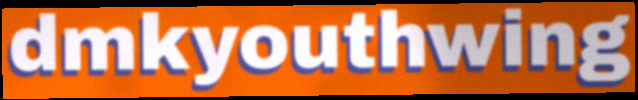
dmkyouthwing